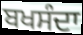
ਬਖਸੰਦਾ